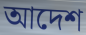
আদেশ